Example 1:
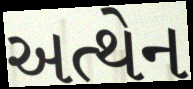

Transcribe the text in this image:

અત્થેન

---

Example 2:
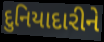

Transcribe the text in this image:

દુનિયાદારીને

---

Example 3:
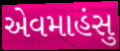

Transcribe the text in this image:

એવમાહંસુ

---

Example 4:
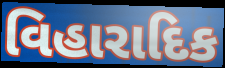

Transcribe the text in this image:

વિહારાદિક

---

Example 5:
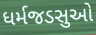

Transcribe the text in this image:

ધર્મજડસુઓ